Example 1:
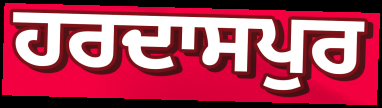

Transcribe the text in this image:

ਹਰਦਾਸਪੁਰ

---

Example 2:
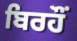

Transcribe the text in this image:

ਬਿਰਹੌਂ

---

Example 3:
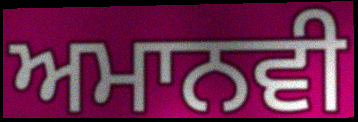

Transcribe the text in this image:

ਅਮਾਨਵੀ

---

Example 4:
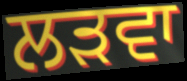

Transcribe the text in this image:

ਲੜਵਾ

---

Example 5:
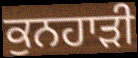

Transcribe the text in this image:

ਕੁਨਹਾੜੀ